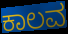
ಕಾಲವ